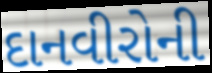
દાનવીરોની